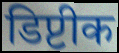
डिप्टीक